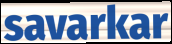
savarkar